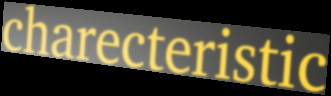
charecteristic